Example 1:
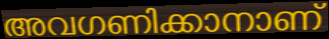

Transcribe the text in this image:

അവഗണിക്കാനാണ്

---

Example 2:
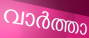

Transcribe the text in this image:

വാർത്താ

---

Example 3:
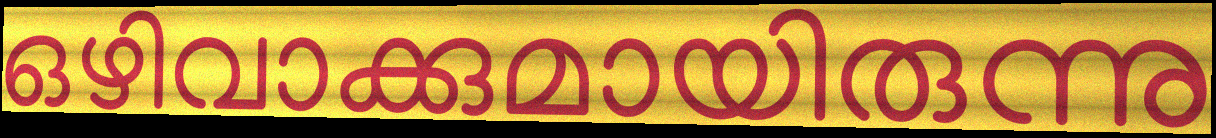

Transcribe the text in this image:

ഒഴിവാക്കുമായിരുന്നു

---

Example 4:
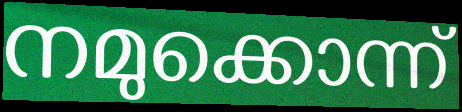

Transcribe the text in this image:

നമുക്കൊന്ന്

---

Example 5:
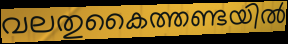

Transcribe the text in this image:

വലതുകൈത്തണ്ടയിൽ